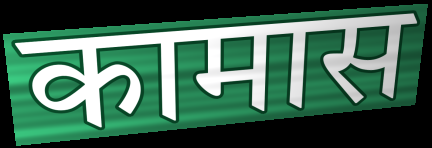
कामास